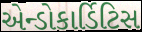
એન્ડોકાર્ડિટિસ